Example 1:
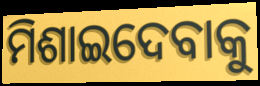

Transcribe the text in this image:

ମିଶାଇଦେବାକୁ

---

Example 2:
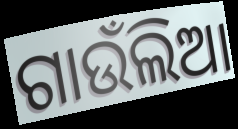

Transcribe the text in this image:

ଗାଉଁଲିଆ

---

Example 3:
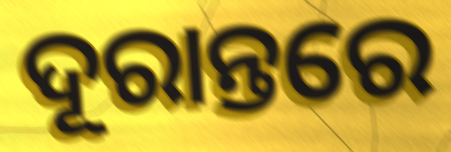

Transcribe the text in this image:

ଦୂରାନ୍ତରେ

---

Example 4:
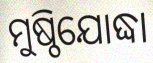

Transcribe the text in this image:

ମୁଷ୍ଠିଯୋଦ୍ଧା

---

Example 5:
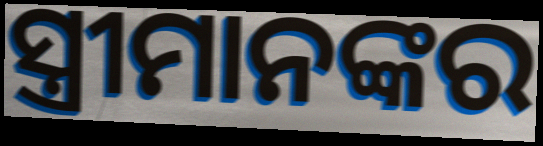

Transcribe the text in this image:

ସ୍ତ୍ରୀମାନଙ୍କର